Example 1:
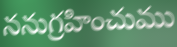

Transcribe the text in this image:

ననుగ్రహించుము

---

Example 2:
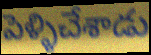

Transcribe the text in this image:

పెళ్ళిచేశాడు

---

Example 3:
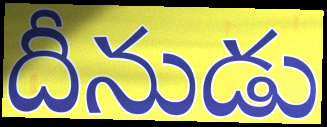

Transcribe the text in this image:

దీనుడు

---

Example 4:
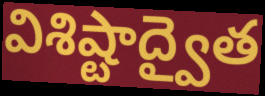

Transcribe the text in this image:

విశిష్టాద్వైత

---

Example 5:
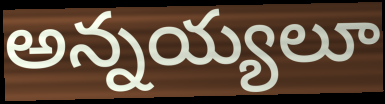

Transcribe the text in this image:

అన్నయ్యలూ